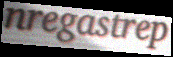
nregastrep